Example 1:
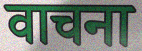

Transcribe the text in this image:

वाचना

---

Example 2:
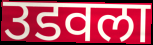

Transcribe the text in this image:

उडवला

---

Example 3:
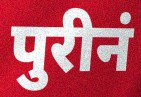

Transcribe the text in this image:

पुरीनं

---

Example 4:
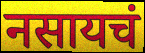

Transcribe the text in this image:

नसायचं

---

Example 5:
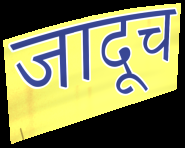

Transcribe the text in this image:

जादूच